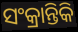
ସଂକ୍ରାନ୍ତିକି